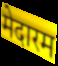
मेदारम